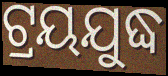
ଟ୍ରୟଯୁଦ୍ଧ